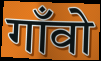
गाँवो